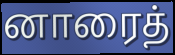
னாரைத்